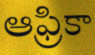
ఆఫ్రికా